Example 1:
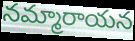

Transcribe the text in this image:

నమ్మారాయన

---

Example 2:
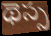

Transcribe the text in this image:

థెస్స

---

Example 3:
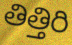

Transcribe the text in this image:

తిత్తిరి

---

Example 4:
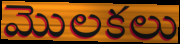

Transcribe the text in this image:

మొలకలు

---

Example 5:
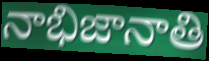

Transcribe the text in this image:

నాభిజానాతి